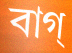
বাগ্